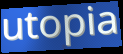
utopia